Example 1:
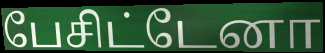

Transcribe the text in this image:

பேசிட்டேனா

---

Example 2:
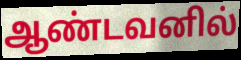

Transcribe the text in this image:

ஆண்டவனில்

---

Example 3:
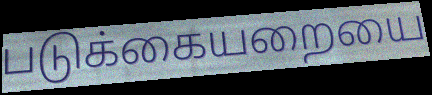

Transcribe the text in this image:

படுக்கையறையை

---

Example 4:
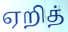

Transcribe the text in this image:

ஏறித்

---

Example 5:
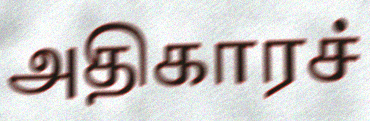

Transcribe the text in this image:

அதிகாரச்